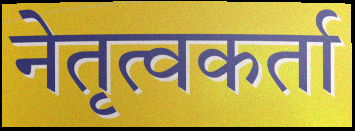
नेतृत्‍वकर्ता